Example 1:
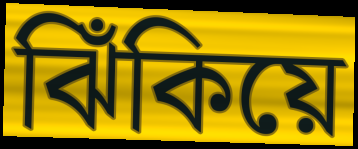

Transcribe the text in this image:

ঝিঁকিয়ে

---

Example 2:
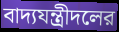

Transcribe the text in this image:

বাদ্যযন্ত্রীদলের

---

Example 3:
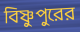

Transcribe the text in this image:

বিষ্ণুপুরের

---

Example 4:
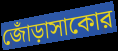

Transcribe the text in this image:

জোঁড়াসাকোর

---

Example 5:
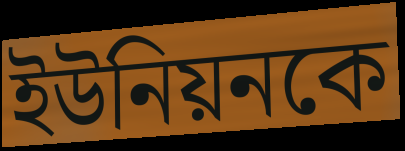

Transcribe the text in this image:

ইউনিয়নকে